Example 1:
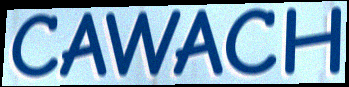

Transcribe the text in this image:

CAWACH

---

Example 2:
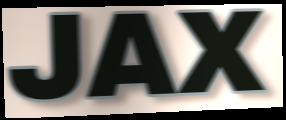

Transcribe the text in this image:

JAX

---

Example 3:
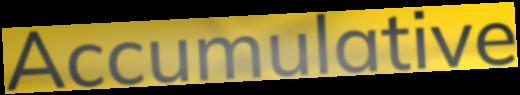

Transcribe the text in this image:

Accumulative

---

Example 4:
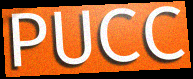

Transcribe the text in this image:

PUCC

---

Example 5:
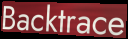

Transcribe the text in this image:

Backtrace